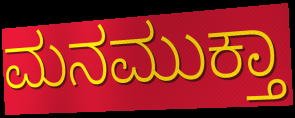
ಮನಮುಕ್ತಾ